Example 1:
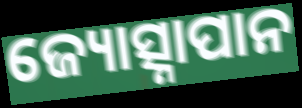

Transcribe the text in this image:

ଜ୍ୟୋତ୍ସ୍ନାପାନ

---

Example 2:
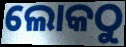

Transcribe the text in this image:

ଲୋକଠୁ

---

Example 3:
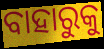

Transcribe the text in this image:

ବାହାରୁକୁ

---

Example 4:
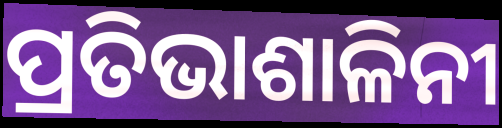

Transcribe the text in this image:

ପ୍ରତିଭାଶାଳିନୀ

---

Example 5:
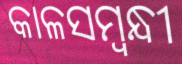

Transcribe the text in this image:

କାଳସମ୍ଵନ୍ଧୀ